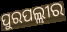
ପୁରପଲ୍ଲୀର